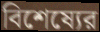
বিশেষ্যের